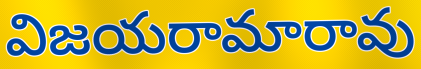
విజయరామారావు